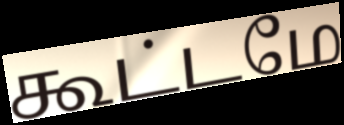
கூட்டமே